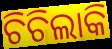
ଚିଚିଲାକି